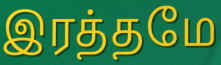
இரத்தமே